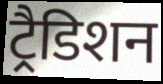
ट्रैडिशन